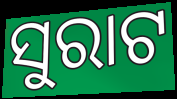
ସୁରାଟ